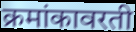
क्रमांकावरती